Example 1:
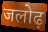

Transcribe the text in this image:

जलोढ़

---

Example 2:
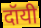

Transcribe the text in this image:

दॉयी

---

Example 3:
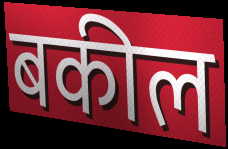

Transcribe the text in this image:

बकील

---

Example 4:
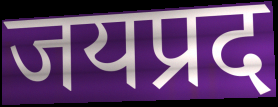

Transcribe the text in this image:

जयप्रद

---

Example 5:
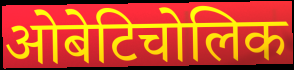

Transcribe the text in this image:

ओबेटिचोलिक